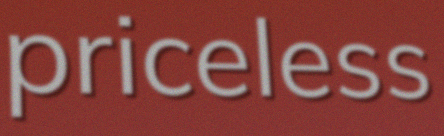
priceless